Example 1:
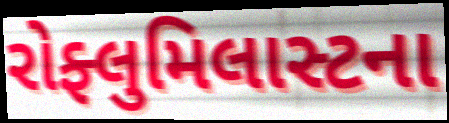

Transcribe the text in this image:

રોફ્લુમિલાસ્ટના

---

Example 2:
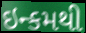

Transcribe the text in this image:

ઇન્કમથી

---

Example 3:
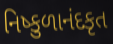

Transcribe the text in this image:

નિષ્કુળાનંદકૃત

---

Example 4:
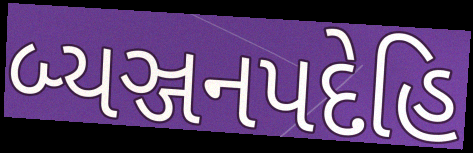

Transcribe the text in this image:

બ્યઞ્જનપદેહિ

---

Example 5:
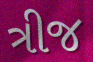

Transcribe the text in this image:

ત્રીજ